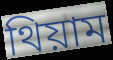
থিয়াম